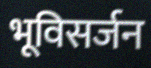
भूविसर्जन